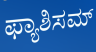
ಫ್ಯಾಶಿಸಮ್